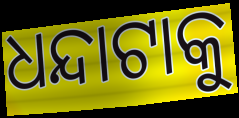
ଧନ୍ଦାଟାକୁ